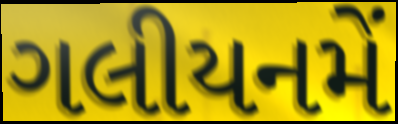
ગલીયનમેં